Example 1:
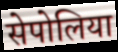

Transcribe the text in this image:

सेपोलिया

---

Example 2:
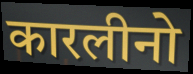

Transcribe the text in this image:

कारलीनो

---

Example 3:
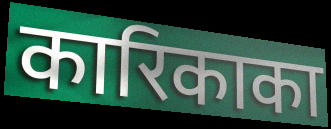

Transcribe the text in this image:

कारिकाका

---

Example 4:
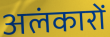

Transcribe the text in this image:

अलंकारों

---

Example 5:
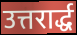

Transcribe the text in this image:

उत्तरार्द्ध